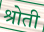
श्रोती